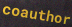
coauthor